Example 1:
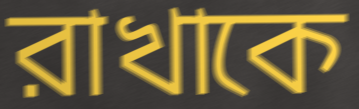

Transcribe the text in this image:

রাখাকে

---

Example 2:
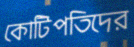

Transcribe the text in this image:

কোটিপতিদের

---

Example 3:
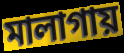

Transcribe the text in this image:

মালাগায়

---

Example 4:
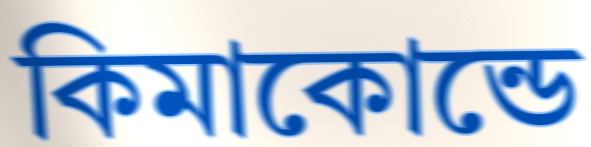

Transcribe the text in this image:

কিমাকোন্ডে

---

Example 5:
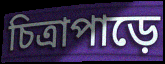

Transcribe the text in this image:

চিত্রাপাড়ে